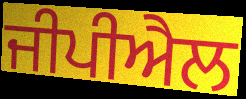
ਜੀਪੀਐਲ